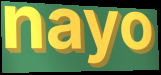
nayo